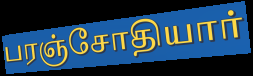
பரஞ்சோதியார்